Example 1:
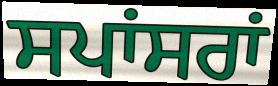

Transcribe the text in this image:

ਸਪਾਂਸਰਾਂ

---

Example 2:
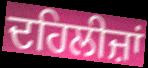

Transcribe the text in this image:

ਦਹਿਲੀਜ਼ਾਂ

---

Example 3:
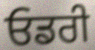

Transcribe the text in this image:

ਓਡਰੀ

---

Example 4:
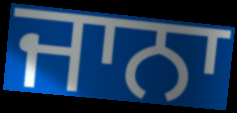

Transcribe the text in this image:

ਜਾਨਾ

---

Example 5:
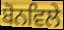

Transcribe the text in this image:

ਬੋਨਵਿਲੇ